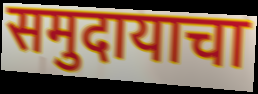
समुदायाचा